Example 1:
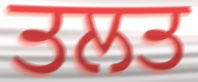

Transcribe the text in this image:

ਤਲਤ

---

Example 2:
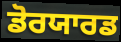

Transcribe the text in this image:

ਡੋਰਯਾਰਡ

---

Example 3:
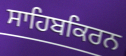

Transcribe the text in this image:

ਸਾਹਿਬਕਿਰਨ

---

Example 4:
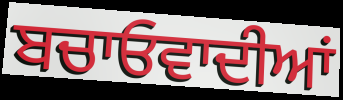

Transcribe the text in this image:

ਬਚਾਓਵਾਦੀਆਂ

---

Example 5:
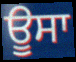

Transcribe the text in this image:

ਊਸਾ